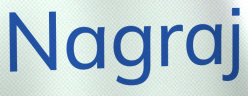
Nagraj